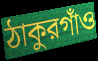
ঠাকুরগাঁও